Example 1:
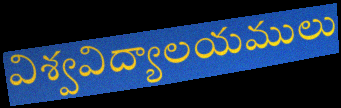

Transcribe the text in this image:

విశ్వవిద్యాలయములు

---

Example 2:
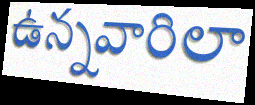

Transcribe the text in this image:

ఉన్నవారిలా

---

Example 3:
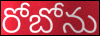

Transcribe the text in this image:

రోబోను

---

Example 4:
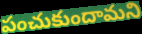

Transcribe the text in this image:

పంచుకుందామని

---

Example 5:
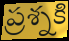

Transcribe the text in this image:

ప్రశ్నకి